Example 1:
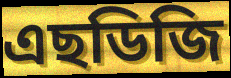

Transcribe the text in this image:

এছডিজি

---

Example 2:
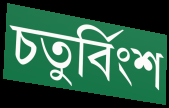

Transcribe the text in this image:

চতুৰ্বিংশ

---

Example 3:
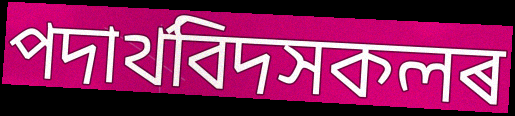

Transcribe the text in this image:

পদাৰ্থবিদসকলৰ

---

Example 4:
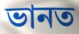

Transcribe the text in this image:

ভানত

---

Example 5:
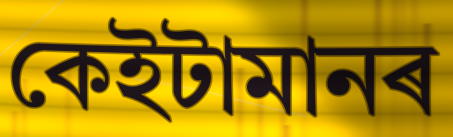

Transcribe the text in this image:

কেইটামানৰ